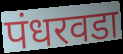
पंधरवडा